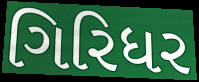
ગિરિધર